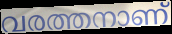
വരത്തനാണ്